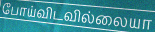
போய்விடவில்லையா